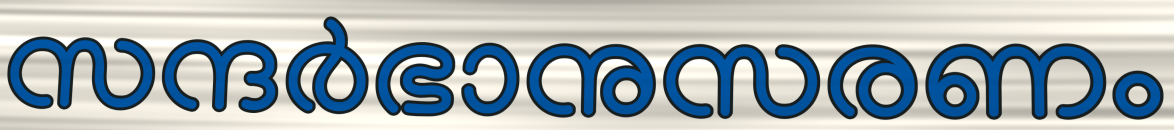
സന്ദർഭാനുസരണം